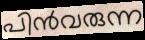
പിൻവരുന്ന